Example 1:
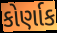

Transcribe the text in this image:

કોર્ણાક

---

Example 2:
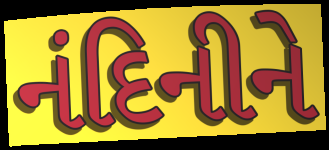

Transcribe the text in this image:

નંદિનીને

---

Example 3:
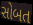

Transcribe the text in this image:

સોબત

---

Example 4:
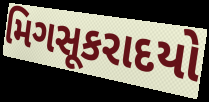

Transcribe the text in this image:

મિગસૂકરાદયો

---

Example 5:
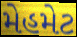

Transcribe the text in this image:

મેહમેટ